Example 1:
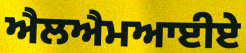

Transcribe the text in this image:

ਐਲਐਮਆਈਏ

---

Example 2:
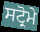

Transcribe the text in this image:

ਸਟ੍ਰੋਮੇ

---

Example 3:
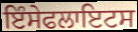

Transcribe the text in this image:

ਇੰਸੇਫਲਾਇਟਸ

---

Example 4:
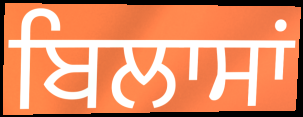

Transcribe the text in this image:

ਬਿਲਾਸਾਂ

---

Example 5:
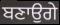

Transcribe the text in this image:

ਬਣਾਉਗੇ